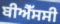
ਬੀਐੱਸਸੀ